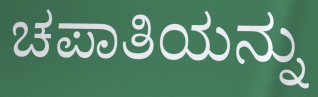
ಚಪಾತಿಯನ್ನು